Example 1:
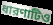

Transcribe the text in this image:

ধারণাটিও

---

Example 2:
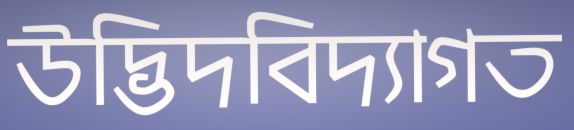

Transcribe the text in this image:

উদ্ভিদবিদ্যাগত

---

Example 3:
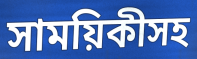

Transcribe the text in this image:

সাময়িকীসহ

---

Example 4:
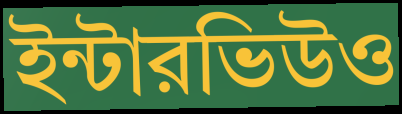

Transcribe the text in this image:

ইন্টারভিউও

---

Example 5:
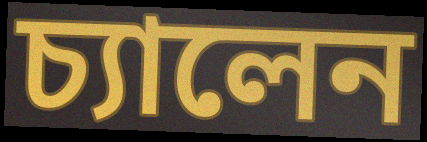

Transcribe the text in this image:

চ্যালেন